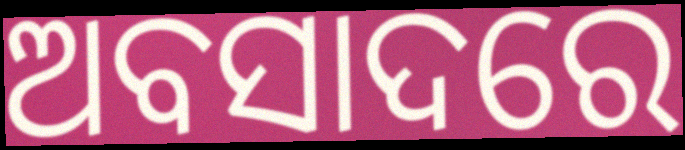
ଅବସାଦରେ